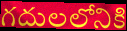
గదులలోనికి